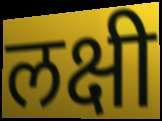
लक्षी